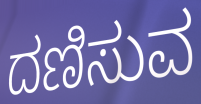
ದಣಿಸುವ